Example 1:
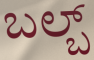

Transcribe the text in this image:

ಬಲ್ಬ್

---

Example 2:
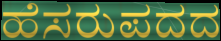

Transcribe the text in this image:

ಹೆಸರುಪದದ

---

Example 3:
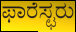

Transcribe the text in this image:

ಫಾರೆಸ್ಟರು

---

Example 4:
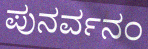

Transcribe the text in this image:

ಪುನರ್ವನಂ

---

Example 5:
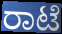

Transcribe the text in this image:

ರಾಟೆ